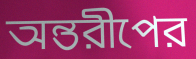
অন্তরীপের